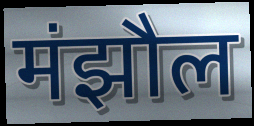
मंझौल